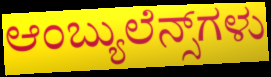
ಆಂಬ್ಯುಲೆನ್ಸ್‌ಗಳು